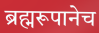
ब्रह्मरूपानेच